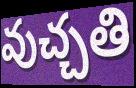
వుచ్చతి